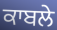
ਕਾਬਲੇ